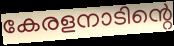
കേരളനാടിന്റെ